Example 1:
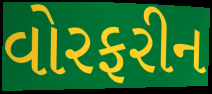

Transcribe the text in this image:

વોરફરીન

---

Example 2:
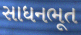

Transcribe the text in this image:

સાધનભૂત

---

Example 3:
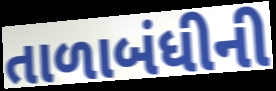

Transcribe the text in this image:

તાળાબંધીની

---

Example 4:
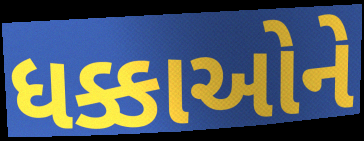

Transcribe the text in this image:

ધક્કાઓને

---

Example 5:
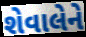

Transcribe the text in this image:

શેવાલેને